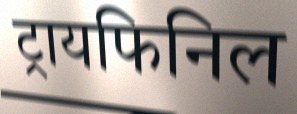
ट्रायफिनिल